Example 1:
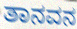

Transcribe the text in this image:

ತಾನವನ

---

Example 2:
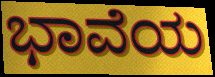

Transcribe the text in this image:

ಭಾವೆಯ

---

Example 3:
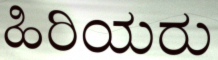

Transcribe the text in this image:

ಹಿರಿಯರು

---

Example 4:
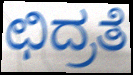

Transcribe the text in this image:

ಛಿದ್ರತೆ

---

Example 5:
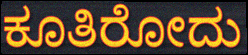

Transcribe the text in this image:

ಕೂತಿರೋದು